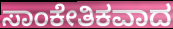
ಸಾಂಕೇತಿಕವಾದ